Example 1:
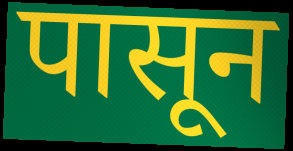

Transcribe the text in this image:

पासून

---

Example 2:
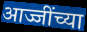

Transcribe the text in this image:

आज्जींच्या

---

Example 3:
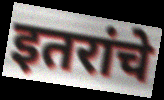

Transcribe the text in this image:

इतरांचे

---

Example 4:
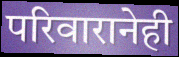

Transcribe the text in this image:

परिवारानेही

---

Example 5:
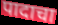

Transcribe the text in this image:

पादाचा